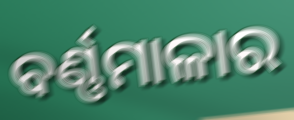
ବର୍ଣ୍ଣମାଳାର